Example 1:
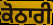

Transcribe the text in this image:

ਕੋਠਾਰੀ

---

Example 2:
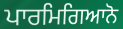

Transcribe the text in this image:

ਪਾਰਮਿਗਿਆਨੋ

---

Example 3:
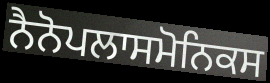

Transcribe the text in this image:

ਨੈਨੋਪਲਾਸਮੋਨਿਕਸ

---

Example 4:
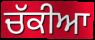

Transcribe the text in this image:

ਚੱਕੀਆ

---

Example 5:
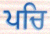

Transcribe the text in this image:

ਪਚਿ